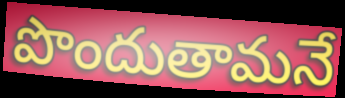
పొందుతామనే